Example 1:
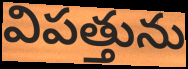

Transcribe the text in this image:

విపత్తును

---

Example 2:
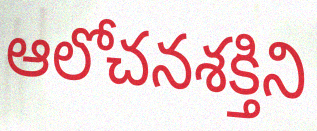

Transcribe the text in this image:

ఆలోచనశక్తిని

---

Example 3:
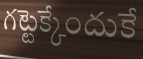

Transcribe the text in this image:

గట్టెక్కేందుకే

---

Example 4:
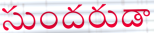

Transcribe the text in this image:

సుందరుడా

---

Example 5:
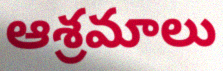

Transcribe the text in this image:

ఆశ్రమాలు